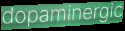
dopaminergic